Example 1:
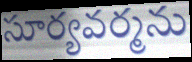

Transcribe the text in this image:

సూర్యవర్మను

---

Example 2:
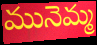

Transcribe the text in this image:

మునెమ్మ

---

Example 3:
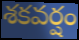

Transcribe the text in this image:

శకవర్షం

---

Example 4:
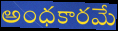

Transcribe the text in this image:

అంధకారమే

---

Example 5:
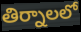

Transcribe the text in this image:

తిర్నాలలో